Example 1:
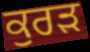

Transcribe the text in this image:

ਕੁਰੜ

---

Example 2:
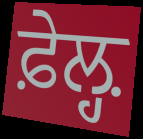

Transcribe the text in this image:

ਫ਼ੇਲ਼੍ਹ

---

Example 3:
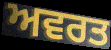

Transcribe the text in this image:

ਅਵਰਤ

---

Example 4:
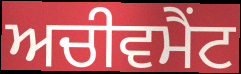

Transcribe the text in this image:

ਅਚੀਵਮੈਂਟ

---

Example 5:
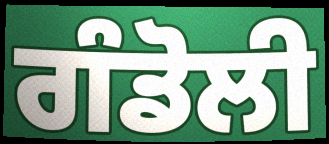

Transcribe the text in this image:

ਗੰਡੋਲੀ